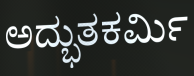
ಅದ್ಭುತಕರ್ಮಿ